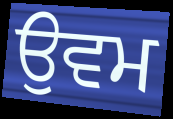
ਉਵਮ